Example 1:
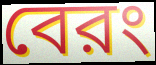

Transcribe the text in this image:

বেরং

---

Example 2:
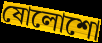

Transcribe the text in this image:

ষোলোশো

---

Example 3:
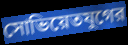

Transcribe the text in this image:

সোভিয়েতযুগের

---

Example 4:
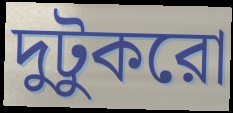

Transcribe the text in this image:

দুটুকরো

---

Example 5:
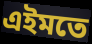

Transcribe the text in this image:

এইমতে